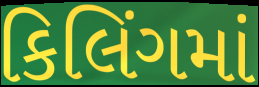
કિલિંગમાં